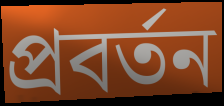
প্ৰবৰ্তন